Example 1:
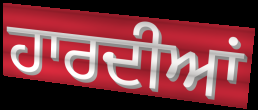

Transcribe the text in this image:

ਹਾਰਦੀਆਂ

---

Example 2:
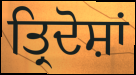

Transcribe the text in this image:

ਤ੍ਰਿਦੋਸ਼ਾਂ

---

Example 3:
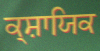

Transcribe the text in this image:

ਕ੍ਸ਼ਾਯਿਕ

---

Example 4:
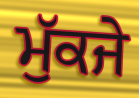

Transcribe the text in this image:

ਮੁੱਕਜੇ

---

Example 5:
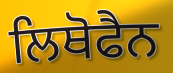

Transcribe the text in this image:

ਲਿਥੋਫੈਨ